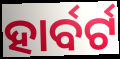
ହାର୍ବର୍ଟ